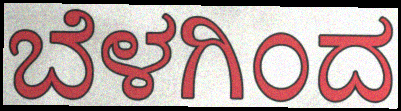
ಬೆಳಗಿಂದ